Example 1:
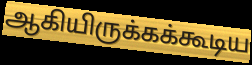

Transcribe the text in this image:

ஆகியிருக்கக்கூடிய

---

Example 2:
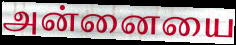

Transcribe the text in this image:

அன்னையை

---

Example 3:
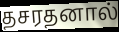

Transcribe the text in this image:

தசரதனால்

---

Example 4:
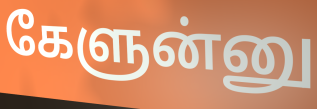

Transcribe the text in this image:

கேளுன்னு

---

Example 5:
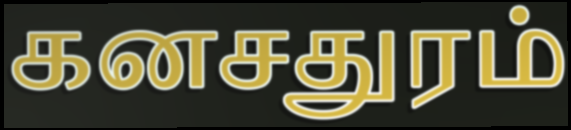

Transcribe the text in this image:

கனசதுரம்